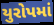
યુરોપમાં